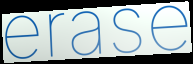
erase